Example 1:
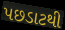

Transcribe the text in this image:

પછડાટથી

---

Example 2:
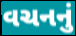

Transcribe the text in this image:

વચનનું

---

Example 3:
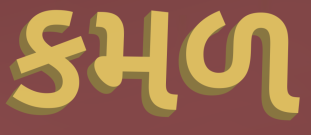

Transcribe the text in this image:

કમળ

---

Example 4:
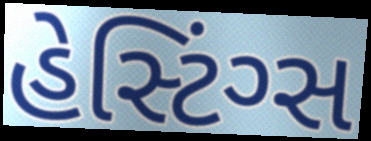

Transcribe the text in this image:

હેસ્ટિંગ્સ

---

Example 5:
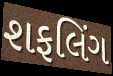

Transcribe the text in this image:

શફલિંગ